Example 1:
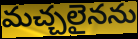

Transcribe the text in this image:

మచ్చలైనను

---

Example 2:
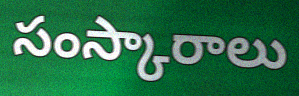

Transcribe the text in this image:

సంస్కారాలు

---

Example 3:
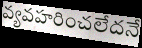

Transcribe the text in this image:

వ్యవహరించలేదనే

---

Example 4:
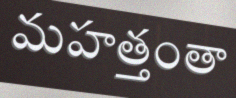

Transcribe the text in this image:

మహత్తంతా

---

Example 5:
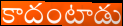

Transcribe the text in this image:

కాదంటాడు